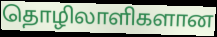
தொழிலாளிகளான